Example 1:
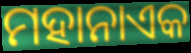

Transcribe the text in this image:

ମହାନାଏକ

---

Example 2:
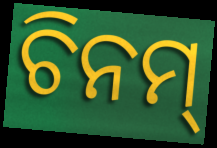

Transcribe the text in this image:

ଚିନମ୍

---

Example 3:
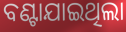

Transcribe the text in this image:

ବଣ୍ଟାଯାଇଥିଲା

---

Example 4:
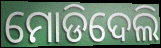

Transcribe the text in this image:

ମୋଡିଦେଲି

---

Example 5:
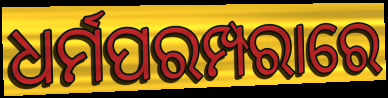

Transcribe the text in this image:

ଧର୍ମପରମ୍ପରାରେ